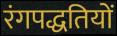
रंगपद्धतियों